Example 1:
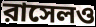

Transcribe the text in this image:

রাসেলও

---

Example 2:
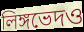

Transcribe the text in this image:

লিঙ্গভেদও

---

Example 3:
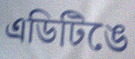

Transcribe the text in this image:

এডিটিঙে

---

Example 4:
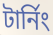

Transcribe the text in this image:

টার্নিং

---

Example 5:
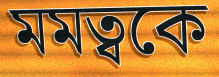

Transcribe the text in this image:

মমত্বকে